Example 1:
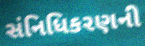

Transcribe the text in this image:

સંનિધિકરણની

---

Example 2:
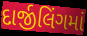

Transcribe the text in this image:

દાર્જીલિંગમાં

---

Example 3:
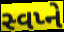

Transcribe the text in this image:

સ્વપ્ને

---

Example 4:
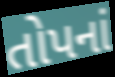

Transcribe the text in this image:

તોપનાં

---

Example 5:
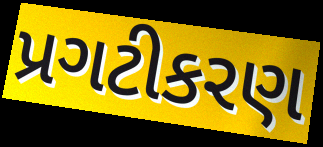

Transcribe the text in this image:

પ્રગટીકરણ